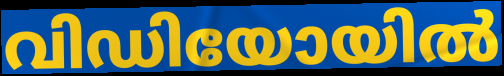
വിഡിയോയിൽ